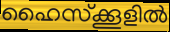
ഹൈസ്ക്കൂളിൽ